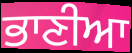
ਭਾਣੀਆ